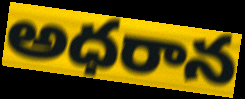
అధరాన